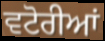
ਵਟੋਰੀਆਂ